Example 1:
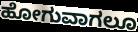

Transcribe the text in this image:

ಹೋಗುವಾಗಲೂ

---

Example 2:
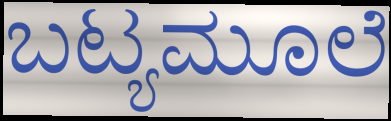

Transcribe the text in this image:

ಬಟ್ಯಮೂಲೆ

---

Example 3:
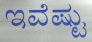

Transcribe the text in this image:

ಇವೆಷ್ಟು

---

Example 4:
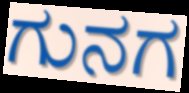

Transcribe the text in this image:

ಗುನಗ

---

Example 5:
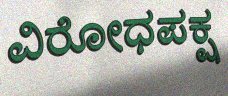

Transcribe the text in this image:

ವಿರೋಧಪಕ್ಷ